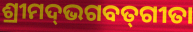
ଶ୍ରୀମଦ୍‌ଭଗବତ୍‌ଗୀତା